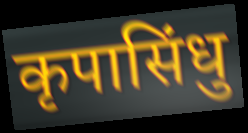
कृपासिंधु